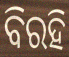
ବିରହି